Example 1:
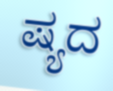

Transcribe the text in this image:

ಷ್ಯದ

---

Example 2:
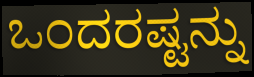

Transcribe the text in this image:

ಒಂದರಷ್ಟನ್ನು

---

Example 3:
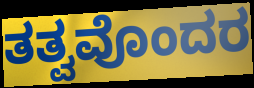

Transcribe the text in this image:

ತತ್ವವೊಂದರ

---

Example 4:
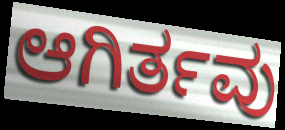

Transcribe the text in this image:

ಆಗಿರ್ತವು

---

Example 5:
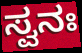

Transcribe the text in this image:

ಸ್ವನಃ